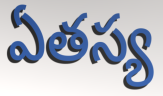
ఏతస్య